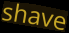
shave